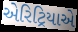
એરિટ્રિયાએ